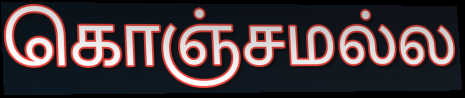
கொஞ்சமல்ல